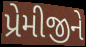
પ્રેમીજીને